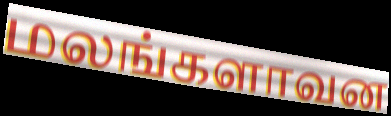
மலங்களாவன